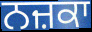
ਨਜ਼ਕਾ